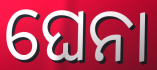
ଘେନା